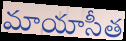
మాయాసీత